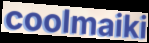
coolmaiki